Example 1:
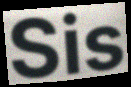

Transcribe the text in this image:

Sis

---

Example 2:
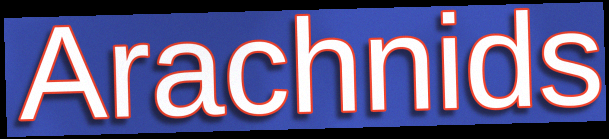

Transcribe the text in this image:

Arachnids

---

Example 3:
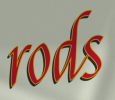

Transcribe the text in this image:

rods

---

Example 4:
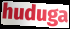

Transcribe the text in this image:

huduga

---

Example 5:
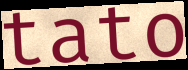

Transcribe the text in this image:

tato